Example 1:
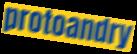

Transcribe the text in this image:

protoandry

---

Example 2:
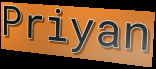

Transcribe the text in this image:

Priyan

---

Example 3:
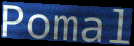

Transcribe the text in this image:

Pomal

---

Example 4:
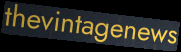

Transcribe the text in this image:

thevintagenews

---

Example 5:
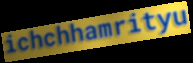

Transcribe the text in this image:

ichchhamrityu